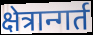
क्षेत्रान्गर्त